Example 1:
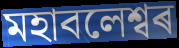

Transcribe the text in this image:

মহাবলেশ্বৰ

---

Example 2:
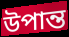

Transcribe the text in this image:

উপান্ত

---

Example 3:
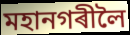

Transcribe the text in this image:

মহানগৰীলৈ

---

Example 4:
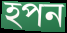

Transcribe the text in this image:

হপন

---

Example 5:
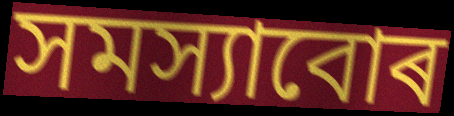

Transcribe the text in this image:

সমস্যাবোৰ